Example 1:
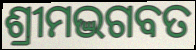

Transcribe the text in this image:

ଶ୍ରୀମଦ୍ଭଗବତ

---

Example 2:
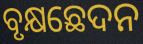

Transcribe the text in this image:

ବୃକ୍ଷଛେଦନ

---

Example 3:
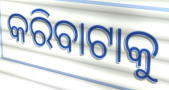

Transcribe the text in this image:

କରିବାଟାକୁ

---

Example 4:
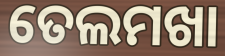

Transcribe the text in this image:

ତେଲମଖା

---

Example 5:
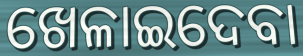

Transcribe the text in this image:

ଖେଳାଇଦେବା